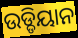
ଉଡ୍ଡିୟାନ